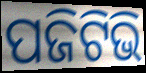
ପଜିଟିଭି